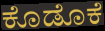
ಕೊಡೊಕೆ